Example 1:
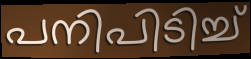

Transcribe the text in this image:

പനിപിടിച്ച്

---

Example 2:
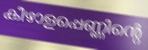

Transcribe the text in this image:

കീഴാളപ്പെണ്ണിന്റെ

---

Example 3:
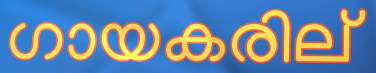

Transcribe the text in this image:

ഗായകരില്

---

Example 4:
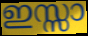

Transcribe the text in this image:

ഇസ്സാ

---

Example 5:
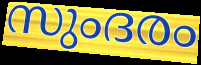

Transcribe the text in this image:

സുംദരം